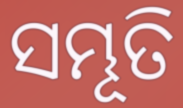
ସମ୍ଭୂତି